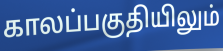
காலப்பகுதியிலும்